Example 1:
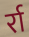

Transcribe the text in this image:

र्रा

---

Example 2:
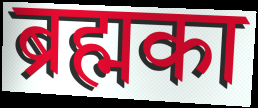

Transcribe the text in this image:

ब्रह्मका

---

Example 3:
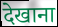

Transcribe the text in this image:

देखाना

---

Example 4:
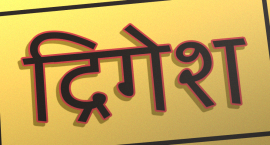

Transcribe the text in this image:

द्रिगेश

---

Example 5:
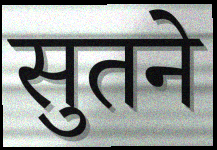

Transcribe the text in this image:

सुतने